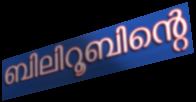
ബിലിറൂബിന്റെ